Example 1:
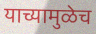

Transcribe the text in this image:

याच्यामुळेच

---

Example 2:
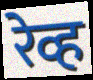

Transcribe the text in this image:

रेव्ह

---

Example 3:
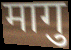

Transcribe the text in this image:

मागु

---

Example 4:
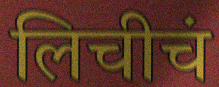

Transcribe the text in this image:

लिचीचं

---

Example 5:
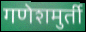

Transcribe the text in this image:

गणेशमुर्ती